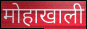
मोहाखाली